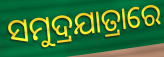
ସମୁଦ୍ରଯାତ୍ରାରେ